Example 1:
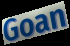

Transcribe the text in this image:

Goan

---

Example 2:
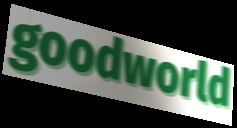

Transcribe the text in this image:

goodworld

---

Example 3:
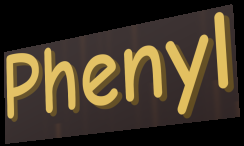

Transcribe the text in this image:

Phenyl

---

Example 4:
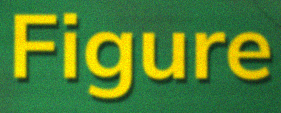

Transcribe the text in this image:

Figure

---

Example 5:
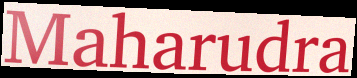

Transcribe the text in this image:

Maharudra